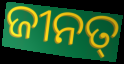
ଜୀନତ୍